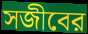
সজীবের